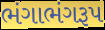
ભંગાભંગરૂપ